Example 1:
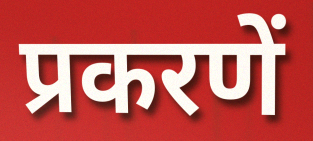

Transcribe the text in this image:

प्रकरणें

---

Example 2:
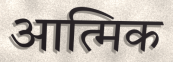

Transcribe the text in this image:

आत्मिक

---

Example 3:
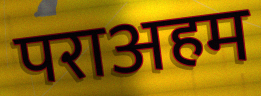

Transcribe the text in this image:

पराअहम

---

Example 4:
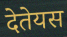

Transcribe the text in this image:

देतेयस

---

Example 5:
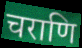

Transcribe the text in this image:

चराणि